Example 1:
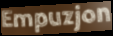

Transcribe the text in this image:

Empuzjon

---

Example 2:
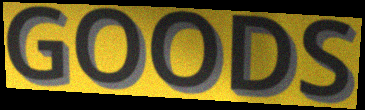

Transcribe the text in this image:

GOODS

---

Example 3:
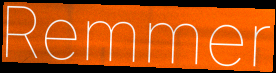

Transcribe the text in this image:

Remmer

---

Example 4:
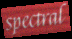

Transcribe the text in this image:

spectral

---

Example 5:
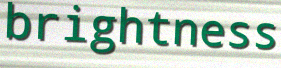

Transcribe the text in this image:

brightness